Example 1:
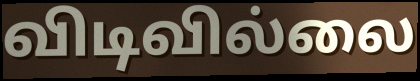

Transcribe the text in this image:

விடிவில்லை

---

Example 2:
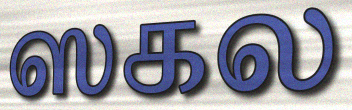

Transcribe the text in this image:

ஸகல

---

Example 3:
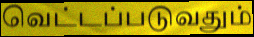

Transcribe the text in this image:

வெட்டப்படுவதும்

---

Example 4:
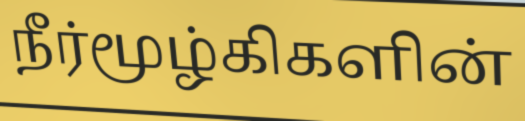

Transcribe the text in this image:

நீர்மூழ்கிகளின்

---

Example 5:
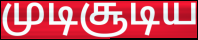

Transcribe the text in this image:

முடிசூடிய